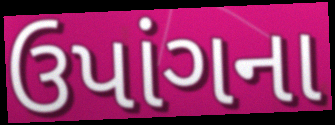
ઉપાંગના